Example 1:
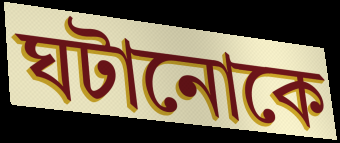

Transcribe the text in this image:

ঘটানোকে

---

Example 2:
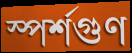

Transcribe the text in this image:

স্পর্শগুণ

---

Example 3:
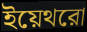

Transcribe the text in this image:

ইয়েথরো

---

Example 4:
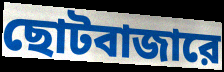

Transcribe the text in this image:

ছোটবাজারে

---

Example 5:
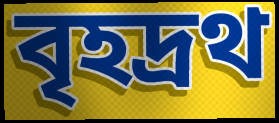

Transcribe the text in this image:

বৃহদ্রথ